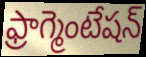
ఫ్రాగ్మెంటేషన్